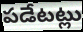
పడేటట్లు